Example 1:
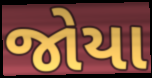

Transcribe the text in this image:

જોયા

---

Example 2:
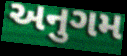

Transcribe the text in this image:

અનુગમ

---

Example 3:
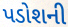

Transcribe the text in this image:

પડોશની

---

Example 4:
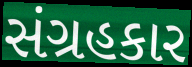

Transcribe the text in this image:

સંગ્રહકાર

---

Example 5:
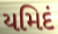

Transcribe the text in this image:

યમિદં